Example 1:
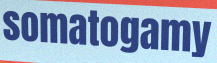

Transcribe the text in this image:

somatogamy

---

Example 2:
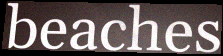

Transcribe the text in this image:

beaches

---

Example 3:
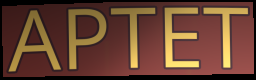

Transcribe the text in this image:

APTET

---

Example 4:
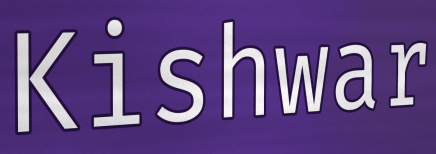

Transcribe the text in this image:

Kishwar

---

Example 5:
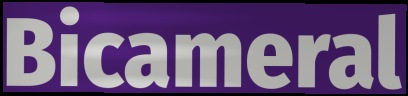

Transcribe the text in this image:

Bicameral